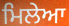
ਮਿਲੇਆ